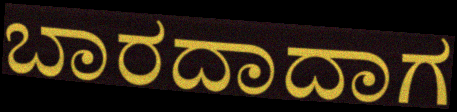
ಬಾರದಾದಾಗ